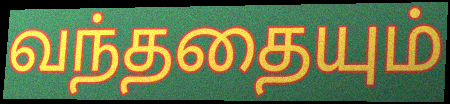
வந்ததையும்